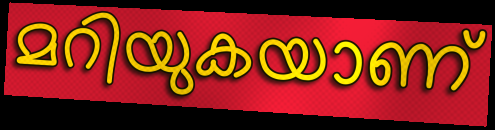
മറിയുകയാണ്